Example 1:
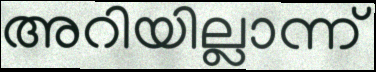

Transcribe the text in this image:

അറിയില്ലാന്ന്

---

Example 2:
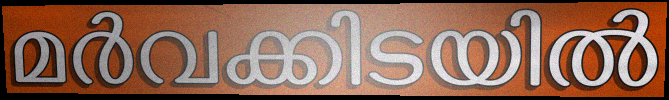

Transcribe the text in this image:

മർവക്കിടയിൽ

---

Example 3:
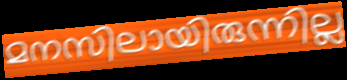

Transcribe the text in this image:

മനസിലായിരുന്നില്ല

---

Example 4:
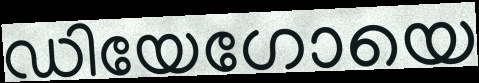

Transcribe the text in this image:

ഡിയേഗോയെ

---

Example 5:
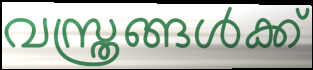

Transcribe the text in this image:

വസ്ത്രങ്ങൾക്ക്